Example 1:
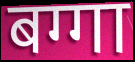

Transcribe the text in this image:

बग्गा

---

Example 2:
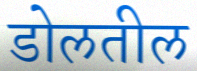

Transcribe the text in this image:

डोलतील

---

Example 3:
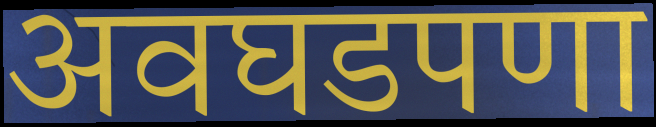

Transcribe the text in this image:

अवघडपणा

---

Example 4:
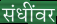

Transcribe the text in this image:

संधींवर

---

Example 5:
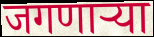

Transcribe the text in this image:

जगणाऱ्या